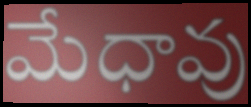
మేధావు